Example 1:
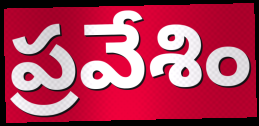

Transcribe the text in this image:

ప్రవేశిం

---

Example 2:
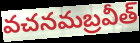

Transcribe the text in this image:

వచనమబ్రవీత్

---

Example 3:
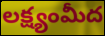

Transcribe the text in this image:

లక్ష్యంమీద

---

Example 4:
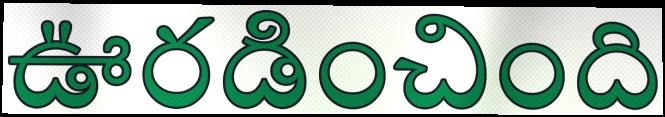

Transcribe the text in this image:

ఊరడించింది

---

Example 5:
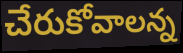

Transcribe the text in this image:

చేరుకోవాలన్న